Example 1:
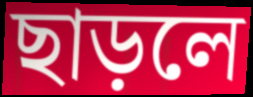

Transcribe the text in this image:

ছাড়লে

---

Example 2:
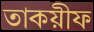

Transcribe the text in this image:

তাকয়ীফ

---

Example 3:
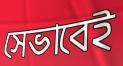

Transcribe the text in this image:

সেভাবেই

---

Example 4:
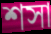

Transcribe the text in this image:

শসা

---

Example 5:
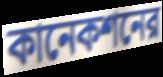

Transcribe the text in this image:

কানেকশনের